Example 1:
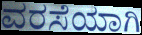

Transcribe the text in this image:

ವರಸೆಯಾಗಿ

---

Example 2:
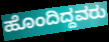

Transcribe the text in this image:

ಹೊಂದಿದ್ದವರು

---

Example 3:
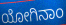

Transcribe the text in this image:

ಯೋಗಿನಾಂ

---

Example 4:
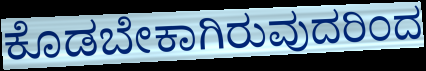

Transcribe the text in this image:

ಕೊಡಬೇಕಾಗಿರುವುದರಿಂದ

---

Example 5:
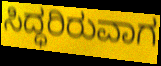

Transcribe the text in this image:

ಸಿದ್ಧರಿರುವಾಗ